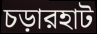
চড়ারহাট